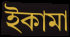
ইকামা